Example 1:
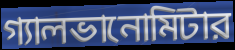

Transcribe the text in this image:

গ্যালভানোমিটার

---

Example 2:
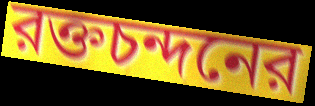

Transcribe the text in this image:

রক্তচন্দনের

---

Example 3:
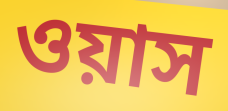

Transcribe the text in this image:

ওয়াস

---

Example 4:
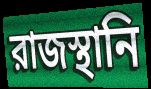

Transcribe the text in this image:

রাজস্থানি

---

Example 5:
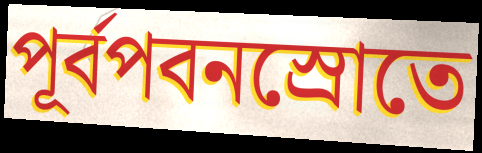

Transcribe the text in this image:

পূর্বপবনস্রোতে